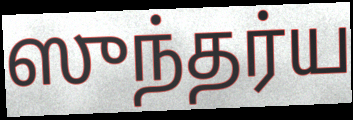
ஸுந்தர்ய